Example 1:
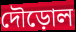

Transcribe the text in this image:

দৌড়োল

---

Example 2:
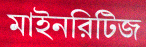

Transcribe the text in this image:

মাইনরিটিজ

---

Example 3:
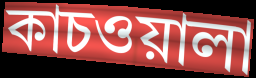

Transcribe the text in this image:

কাচওয়ালা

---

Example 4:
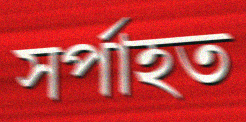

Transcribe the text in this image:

সর্পাহত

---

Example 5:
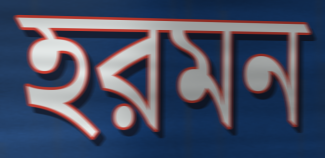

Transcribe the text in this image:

হরমন